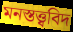
মনস্তত্ত্ববিদ